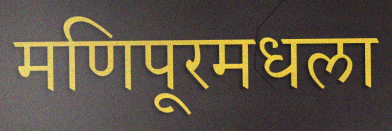
मणिपूरमधला